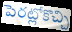
పెరట్లోకొచ్చి